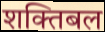
शक्तिबल